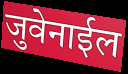
जुवेनाईल